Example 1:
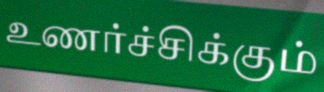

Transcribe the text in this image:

உணர்ச்சிக்கும்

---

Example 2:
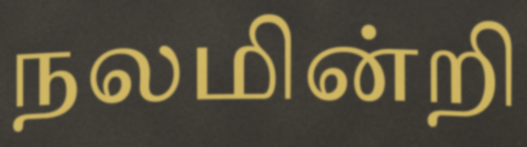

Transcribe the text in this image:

நலமின்றி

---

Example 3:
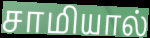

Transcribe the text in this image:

சாமியால்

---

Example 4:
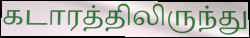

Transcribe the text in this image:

கடாரத்திலிருந்து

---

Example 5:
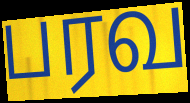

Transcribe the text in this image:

பரவ